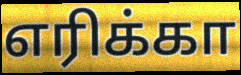
எரிக்கா